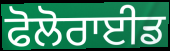
ਫੋਲੋਰਾਈਡ